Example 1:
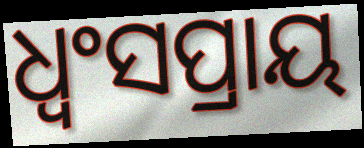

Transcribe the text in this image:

ଧ୍ୱଂସପ୍ରାୟ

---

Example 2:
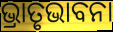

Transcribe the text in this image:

ଭ୍ରାତୃଭାବନା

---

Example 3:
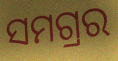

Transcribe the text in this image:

ସମଗ୍ରର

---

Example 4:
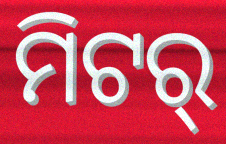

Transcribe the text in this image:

ମିଟର୍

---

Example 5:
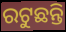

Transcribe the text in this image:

ରଟୁଛନ୍ତି